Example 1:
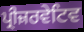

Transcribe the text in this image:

ਪ੍ਰੀਜ਼ਰਵੇਟਿਵ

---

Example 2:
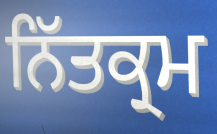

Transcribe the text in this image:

ਨਿੱਤਕ੍ਰਮ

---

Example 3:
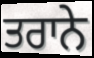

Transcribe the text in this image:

ਤਰਾਨੇ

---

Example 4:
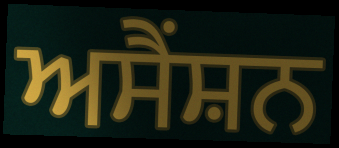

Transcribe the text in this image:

ਅਸੈਂਸ਼ਨ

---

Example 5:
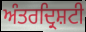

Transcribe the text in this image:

ਅੰਤਰਦ੍ਰਿਸ਼ਟੀ